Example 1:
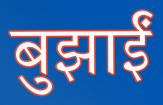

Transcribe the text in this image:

बुझाईं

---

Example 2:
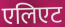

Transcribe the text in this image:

एलिएट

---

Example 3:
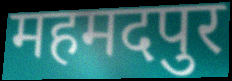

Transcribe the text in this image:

महमदपुर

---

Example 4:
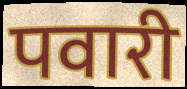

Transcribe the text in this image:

पवारी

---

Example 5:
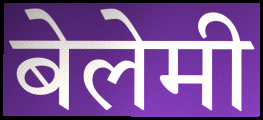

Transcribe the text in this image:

बेलेमी